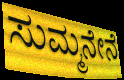
ಸುಮ್ಮನೇನೆ